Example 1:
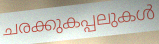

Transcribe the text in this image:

ചരക്കുകപ്പലുകൾ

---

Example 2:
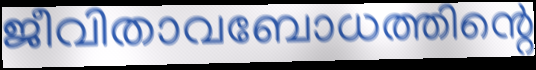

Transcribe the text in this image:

ജീവിതാവബോധത്തിന്റെ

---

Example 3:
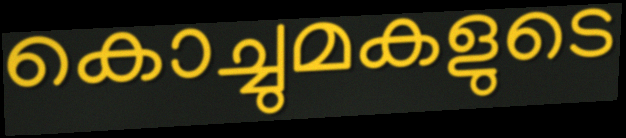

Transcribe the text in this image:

കൊച്ചുമകളുടെ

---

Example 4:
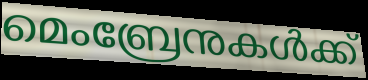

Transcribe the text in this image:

മെംബ്രേനുകൾക്ക്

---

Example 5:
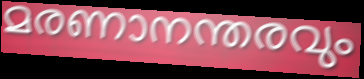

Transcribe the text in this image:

മരണാനന്തരവും